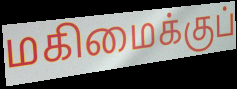
மகிமைக்குப்